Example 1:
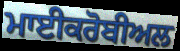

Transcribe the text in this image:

ਮਾਈਕਰੋਬੀਅਲ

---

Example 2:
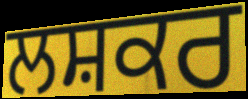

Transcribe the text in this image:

ਲਸ਼ਕਰ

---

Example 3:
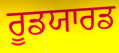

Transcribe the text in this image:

ਰੂਡਯਾਰਡ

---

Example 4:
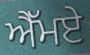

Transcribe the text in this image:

ਐੱਮਏ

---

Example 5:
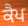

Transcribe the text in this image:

ਕੈਪ